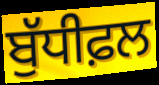
ਬੁੱਧੀਫ਼ਲ